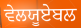
ਵੇਲਯੂਏਬਲ